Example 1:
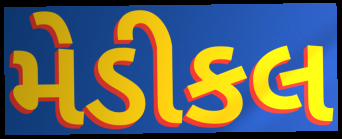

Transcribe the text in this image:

મેડીકલ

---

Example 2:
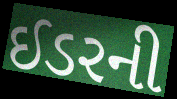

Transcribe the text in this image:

ઈડરની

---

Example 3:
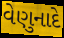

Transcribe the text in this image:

વેણુનાદે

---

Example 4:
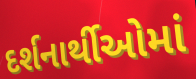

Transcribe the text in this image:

દર્શનાર્થીઓમાં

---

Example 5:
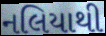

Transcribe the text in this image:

નલિયાથી